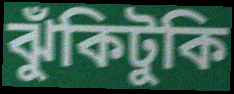
ঝুঁকিটুকি